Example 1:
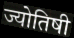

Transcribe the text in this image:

ज्योतिषी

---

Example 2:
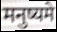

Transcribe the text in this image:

मनुष्यमे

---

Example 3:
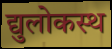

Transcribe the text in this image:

द्युलोकस्थ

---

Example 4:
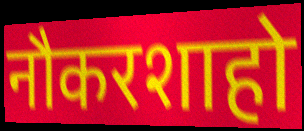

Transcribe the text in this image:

नौकरशाहो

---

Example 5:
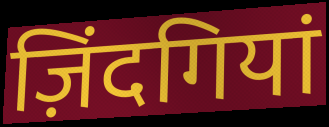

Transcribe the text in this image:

ज़िंदगियां